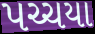
પચ્ચયા